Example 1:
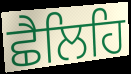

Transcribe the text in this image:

ਛੈਲਿਹਿ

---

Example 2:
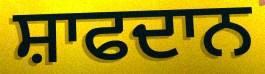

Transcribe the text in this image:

ਸ਼ਾਫਦਾਨ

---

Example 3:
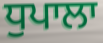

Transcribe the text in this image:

ਧੁਪਾਲਾ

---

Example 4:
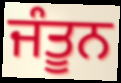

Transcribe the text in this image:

ਜੰਤੂਨ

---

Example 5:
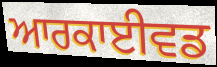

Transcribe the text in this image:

ਆਰਕਾਈਵਡ